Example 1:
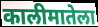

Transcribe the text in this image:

कालीमातेला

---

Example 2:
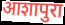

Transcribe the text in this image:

आशापुरा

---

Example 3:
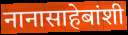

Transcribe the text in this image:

नानासाहेबांशी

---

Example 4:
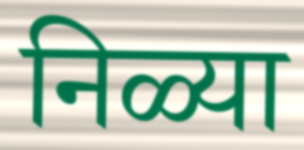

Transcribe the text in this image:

निळ्या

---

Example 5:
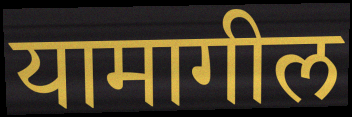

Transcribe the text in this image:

यामागील